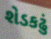
શેડકઢું